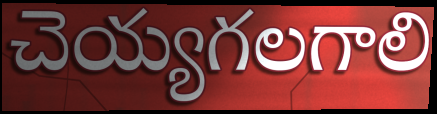
చెయ్యగలగాలి